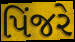
પિંજરે